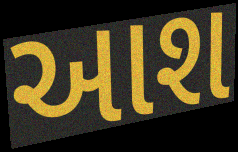
આશ